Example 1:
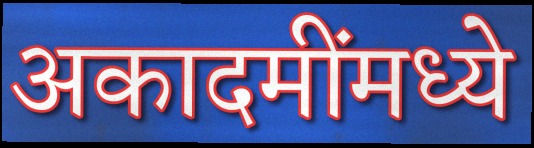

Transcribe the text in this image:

अकादमींमध्ये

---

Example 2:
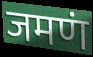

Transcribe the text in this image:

जमणं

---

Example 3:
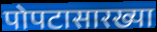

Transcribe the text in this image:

पोपटासारख्या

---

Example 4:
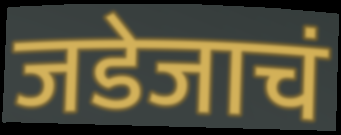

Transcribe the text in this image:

जडेजाचं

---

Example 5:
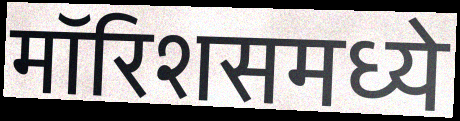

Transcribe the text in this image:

मॉरिशसमध्ये